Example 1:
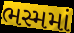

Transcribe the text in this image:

ભસ્મમાં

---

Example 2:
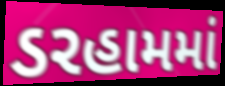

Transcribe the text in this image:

ડરહામમાં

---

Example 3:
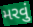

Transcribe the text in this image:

મરવું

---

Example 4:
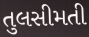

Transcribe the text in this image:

તુલસીમતી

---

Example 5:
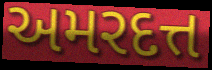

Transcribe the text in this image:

અમરદત્ત